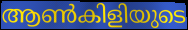
ആൺകിളിയുടെ